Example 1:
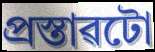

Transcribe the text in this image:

প্ৰস্তাৱটো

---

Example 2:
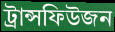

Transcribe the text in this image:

ট্ৰান্সফিউজন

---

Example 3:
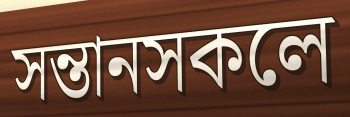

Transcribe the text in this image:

সন্তানসকলে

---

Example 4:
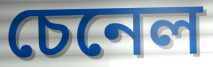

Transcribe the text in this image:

চেনেল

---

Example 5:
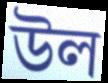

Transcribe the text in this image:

উল